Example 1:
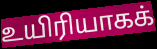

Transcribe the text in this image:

உயிரியாகக்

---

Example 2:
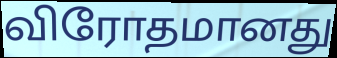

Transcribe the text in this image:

விரோதமானது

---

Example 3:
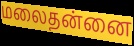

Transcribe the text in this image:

மலைதன்னை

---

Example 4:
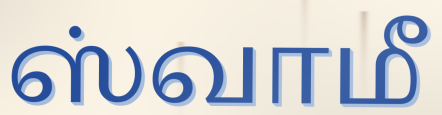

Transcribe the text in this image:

ஸ்வாமீ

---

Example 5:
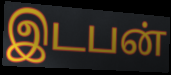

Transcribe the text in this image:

இடபன்